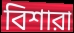
বিশারা